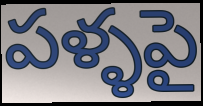
పళ్ళపై